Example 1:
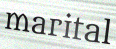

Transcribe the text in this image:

marital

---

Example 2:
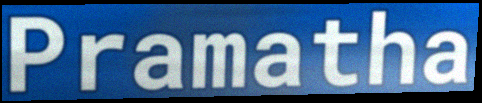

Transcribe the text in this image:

Pramatha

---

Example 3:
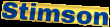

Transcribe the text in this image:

Stimson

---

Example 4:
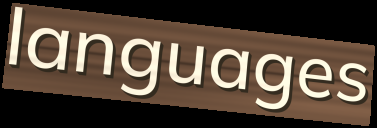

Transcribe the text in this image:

languages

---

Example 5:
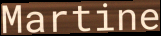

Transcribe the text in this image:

Martine